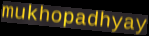
mukhopadhyay